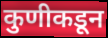
कुणीकडून